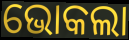
ଭୋକଲା